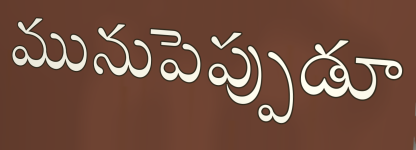
మునుపెప్పుడూ